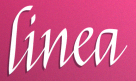
linea